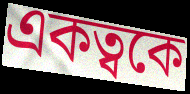
একত্বকে